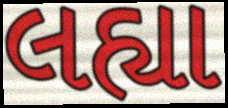
લહ્યા